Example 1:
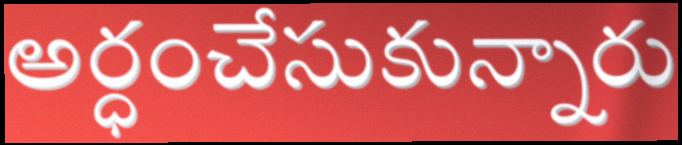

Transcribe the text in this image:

అర్ధంచేసుకున్నారు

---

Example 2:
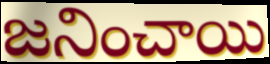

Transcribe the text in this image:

జనించాయి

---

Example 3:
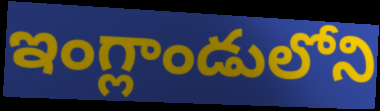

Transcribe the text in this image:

ఇంగ్లాండులోని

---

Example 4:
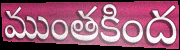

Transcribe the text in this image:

ముంతకింద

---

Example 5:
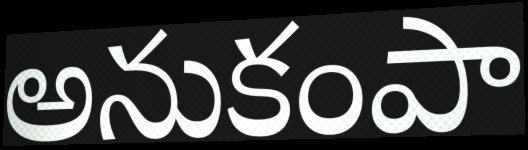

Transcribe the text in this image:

అనుకంపా